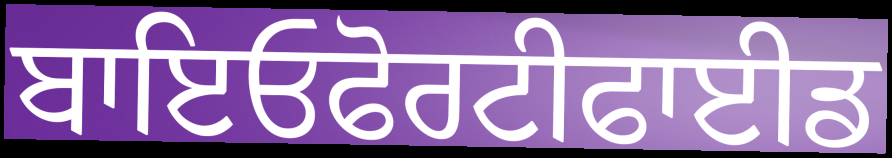
ਬਾਇਓਫੋਰਟੀਫਾਈਡ